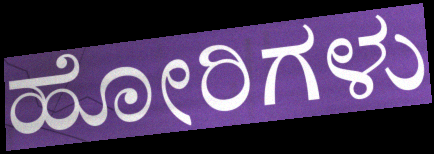
ಹೋರಿಗಳು